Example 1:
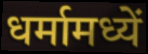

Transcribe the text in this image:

धर्मामध्यें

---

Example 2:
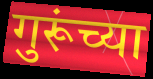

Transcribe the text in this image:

गुरूंच्या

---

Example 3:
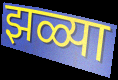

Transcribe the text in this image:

झळ्या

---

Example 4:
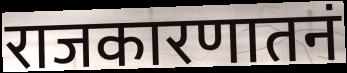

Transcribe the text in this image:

राजकारणातनं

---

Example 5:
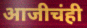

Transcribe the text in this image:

आजीचंही